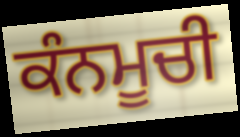
ਕੰਨਮੂਚੀ